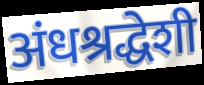
अंधश्रद्धेशी